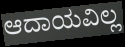
ಆದಾಯವಿಲ್ಲ